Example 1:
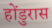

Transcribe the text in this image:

होंडुरास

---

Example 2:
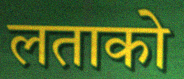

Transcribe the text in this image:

लताको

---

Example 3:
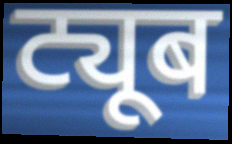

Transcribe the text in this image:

ट्यूब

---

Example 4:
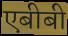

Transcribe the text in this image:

एबीबी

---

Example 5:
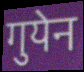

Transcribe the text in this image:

गुयेन